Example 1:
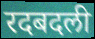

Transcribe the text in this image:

रदबदली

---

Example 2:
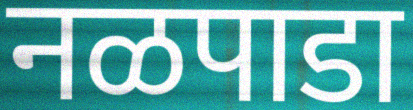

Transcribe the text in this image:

नळपाडा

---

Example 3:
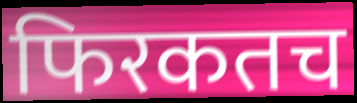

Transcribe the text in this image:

फिरकतच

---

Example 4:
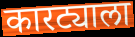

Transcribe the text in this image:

कारट्याला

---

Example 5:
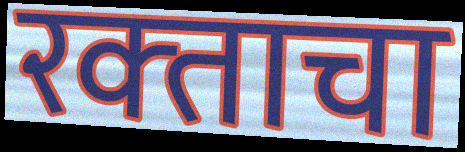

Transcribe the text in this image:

रक्‍ताचा